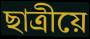
ছাত্ৰীয়ে